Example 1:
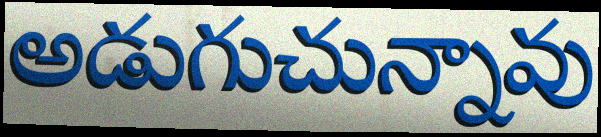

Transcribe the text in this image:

అడుగుచున్నావు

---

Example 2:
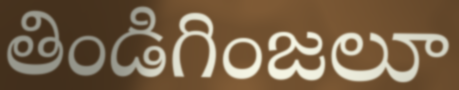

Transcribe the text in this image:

తిండిగింజలూ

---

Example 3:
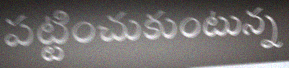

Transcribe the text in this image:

పట్టించుకుంటున్న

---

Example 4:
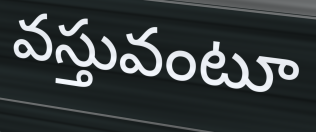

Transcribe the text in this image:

వస్తువంటూ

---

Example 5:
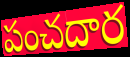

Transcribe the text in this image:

పంచదార